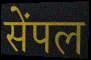
सेंपल